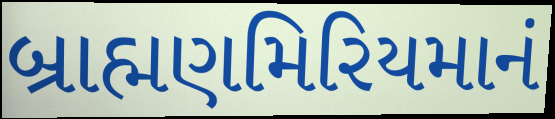
બ્રાહ્મણમિરિયમાનં